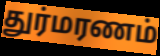
துர்மரணம்